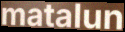
matalun